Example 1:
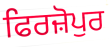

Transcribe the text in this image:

ਫਿਰਜ਼ੋਪੁਰ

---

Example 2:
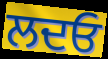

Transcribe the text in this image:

ਲਦਓ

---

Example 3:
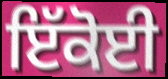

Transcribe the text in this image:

ਇੱਕੋਈ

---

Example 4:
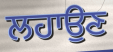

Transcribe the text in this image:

ਲਹਾਉਣ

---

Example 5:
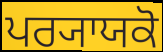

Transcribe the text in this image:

ਪਰ੍ਯਾਯਕੋ